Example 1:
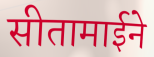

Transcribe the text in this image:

सीतामाईने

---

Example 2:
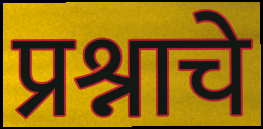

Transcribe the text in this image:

प्रश्नाचे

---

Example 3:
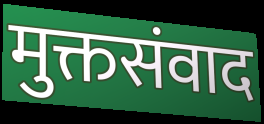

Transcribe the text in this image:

मुक्तसंवाद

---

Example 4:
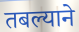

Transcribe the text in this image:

तबल्याने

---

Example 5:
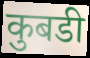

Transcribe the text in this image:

कुबडी